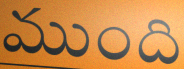
ముంది